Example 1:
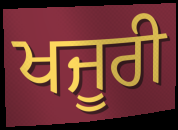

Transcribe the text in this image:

ਖਜੂਰੀ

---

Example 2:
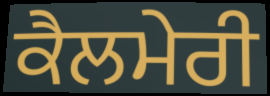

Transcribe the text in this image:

ਕੈਲਮੇਰੀ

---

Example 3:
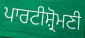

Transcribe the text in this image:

ਪਾਰਟੀਸ਼੍ਰੋਮਣੀ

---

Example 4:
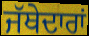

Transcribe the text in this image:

ਜੱਥੇਦਾਰਾਂ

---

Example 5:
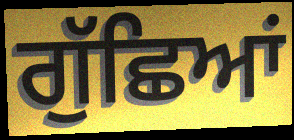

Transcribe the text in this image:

ਗੁੱਛਿਆਂ